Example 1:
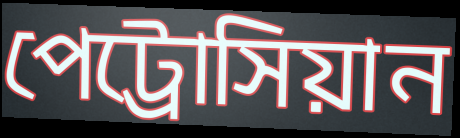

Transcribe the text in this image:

পেট্রোসিয়ান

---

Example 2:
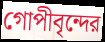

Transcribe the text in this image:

গোপীবৃন্দের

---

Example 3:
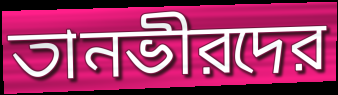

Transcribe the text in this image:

তানভীরদের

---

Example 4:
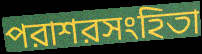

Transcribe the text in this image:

পরাশরসংহিতা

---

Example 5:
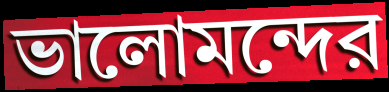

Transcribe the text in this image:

ভালোমন্দের